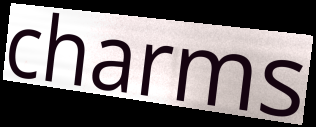
charms